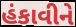
હંકાવીને